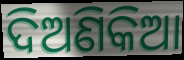
ଦିଅଣିକିଆ